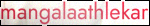
mangalaathlekar